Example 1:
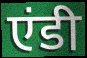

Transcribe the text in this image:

एंडी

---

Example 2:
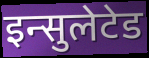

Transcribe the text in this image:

इन्सुलेटेड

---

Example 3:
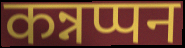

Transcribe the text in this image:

कन्नप्पन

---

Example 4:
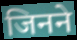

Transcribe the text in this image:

जिनने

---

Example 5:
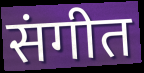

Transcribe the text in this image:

संगीत